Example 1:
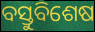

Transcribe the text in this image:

ବସ୍ତୁବିଶେଷ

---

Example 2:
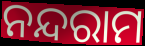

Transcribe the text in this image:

ନନ୍ଦରାମ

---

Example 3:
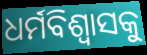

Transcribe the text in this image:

ଧର୍ମବିଶ୍ଵାସକୁ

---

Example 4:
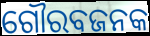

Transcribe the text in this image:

ଗୌରବଜନକ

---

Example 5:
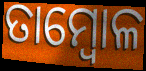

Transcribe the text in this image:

ତାମ୍ବୋଳ